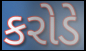
કરોડે